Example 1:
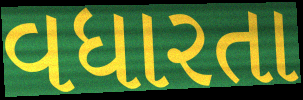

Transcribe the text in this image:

વધારતા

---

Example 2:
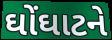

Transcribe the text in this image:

ઘોંઘાટને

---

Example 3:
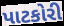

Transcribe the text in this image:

પાટકોરી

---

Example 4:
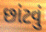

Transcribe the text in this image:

છાંટવું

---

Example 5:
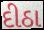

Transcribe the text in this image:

દીઠા